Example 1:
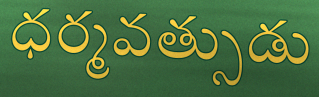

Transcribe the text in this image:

ధర్మవత్సుడు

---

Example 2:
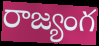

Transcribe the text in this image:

రాజ్యంగ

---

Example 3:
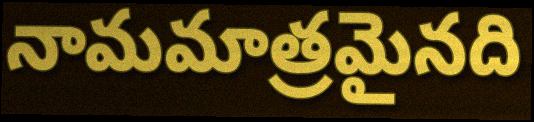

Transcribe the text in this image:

నామమాత్రమైనది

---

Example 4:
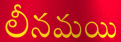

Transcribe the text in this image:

లీనమయి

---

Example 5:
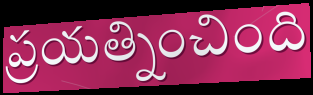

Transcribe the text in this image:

ప్రయత్నించింది